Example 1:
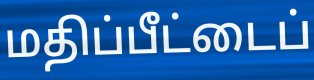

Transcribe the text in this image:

மதிப்பீட்டைப்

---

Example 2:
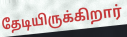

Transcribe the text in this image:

தேடியிருக்கிறார்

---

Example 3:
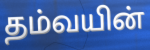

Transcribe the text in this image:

தம்வயின்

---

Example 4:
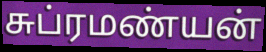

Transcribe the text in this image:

சுப்ரமண்யன்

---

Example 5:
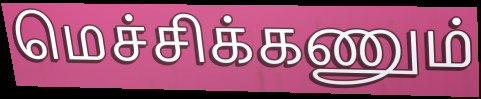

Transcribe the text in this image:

மெச்சிக்கணும்